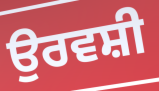
ਉਰਵਸ਼ੀ